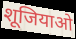
शूजियाओ